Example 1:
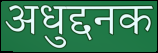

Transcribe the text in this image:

अधुद्दनक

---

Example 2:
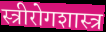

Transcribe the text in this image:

स्त्रीरोगशास्त्र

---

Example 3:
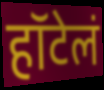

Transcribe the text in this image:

हॉटेलं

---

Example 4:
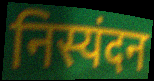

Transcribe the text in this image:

निस्यंदन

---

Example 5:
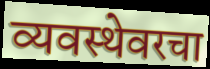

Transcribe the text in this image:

व्यवस्थेवरचा